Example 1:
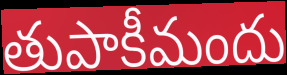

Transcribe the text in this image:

తుపాకీమందు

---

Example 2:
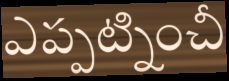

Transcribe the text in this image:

ఎప్పట్నించీ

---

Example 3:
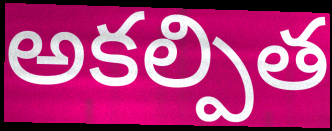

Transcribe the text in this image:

అకల్పిత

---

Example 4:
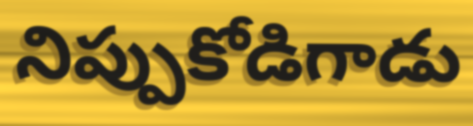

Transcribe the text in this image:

నిప్పుకోడిగాడు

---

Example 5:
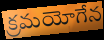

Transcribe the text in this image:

క్రమయోగేన